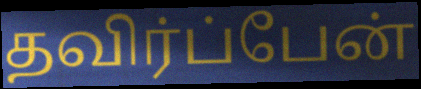
தவிர்ப்பேன்